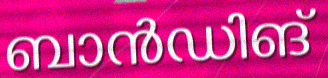
ബാൻഡിങ്